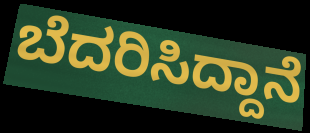
ಬೆದರಿಸಿದ್ದಾನೆ